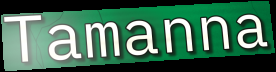
Tamanna